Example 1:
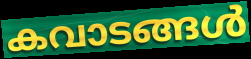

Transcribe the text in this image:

കവാടങ്ങൾ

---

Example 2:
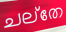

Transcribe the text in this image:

ചല്തേ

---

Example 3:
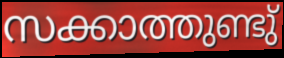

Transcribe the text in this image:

സക്കാത്തുണ്ടു്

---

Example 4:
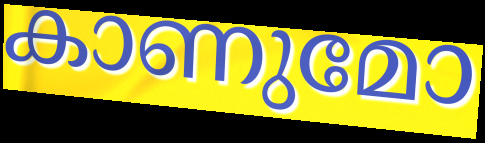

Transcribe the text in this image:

കാണുമോ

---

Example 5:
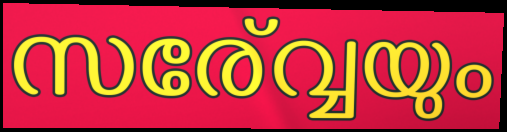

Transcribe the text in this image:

സര്വ്വേയും